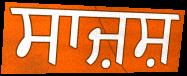
ਸਾਜ਼ਸ਼